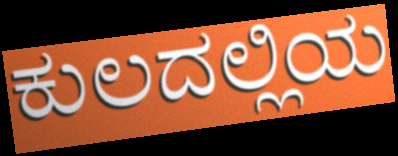
ಕುಲದಲ್ಲಿಯ